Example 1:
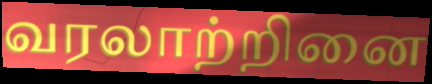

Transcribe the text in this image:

வரலாற்றினை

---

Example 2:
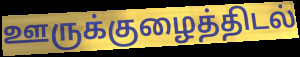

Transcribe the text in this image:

ஊருக்குழைத்திடல்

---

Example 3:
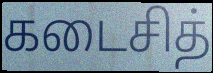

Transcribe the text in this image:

கடைசித்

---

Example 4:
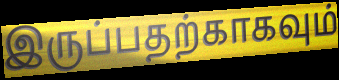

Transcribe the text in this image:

இருப்பதற்காகவும்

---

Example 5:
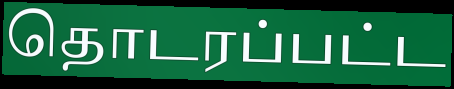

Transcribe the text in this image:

தொடரப்பட்ட